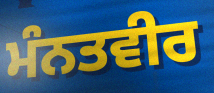
ਮੰਨਤਵੀਰ